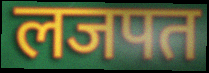
लजपत